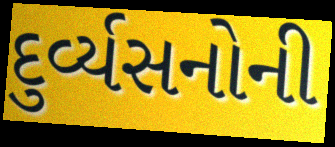
દુર્વ્યસનોની